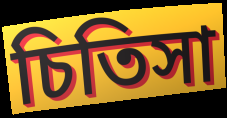
চিতিসা